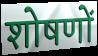
शोषणों